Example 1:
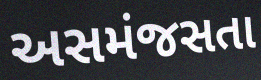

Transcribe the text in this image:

અસમંજસતા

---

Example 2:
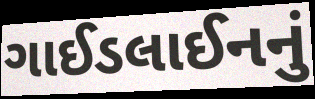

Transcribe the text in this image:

ગાઈડલાઈનનું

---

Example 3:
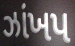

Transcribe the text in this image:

ઝાંખપ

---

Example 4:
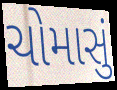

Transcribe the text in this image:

ચોમાસું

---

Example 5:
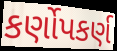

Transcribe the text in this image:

કર્ણોપકર્ણ